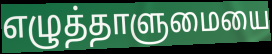
எழுத்தாளுமையை